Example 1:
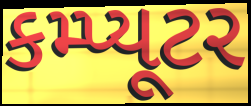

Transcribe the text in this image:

કમ્પ્યૂટર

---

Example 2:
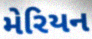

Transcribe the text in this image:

મેરિયન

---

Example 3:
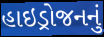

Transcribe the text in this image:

હાઇડ્રોજનનું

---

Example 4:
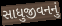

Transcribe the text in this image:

સાધુજીવનનું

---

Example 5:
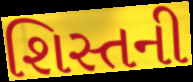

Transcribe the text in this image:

શિસ્તની